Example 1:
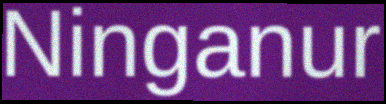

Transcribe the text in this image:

Ninganur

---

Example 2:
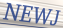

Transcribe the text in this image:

NEWJ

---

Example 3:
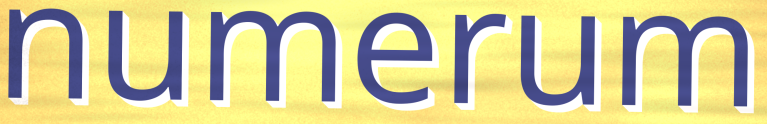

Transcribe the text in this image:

numerum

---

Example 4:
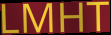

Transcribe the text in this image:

LMHT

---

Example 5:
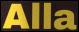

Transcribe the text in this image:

Alla